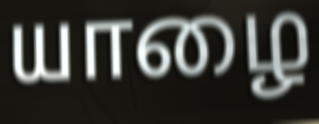
யாழை